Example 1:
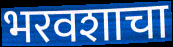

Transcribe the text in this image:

भरवशाचा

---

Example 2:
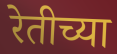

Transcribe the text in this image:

रेतीच्या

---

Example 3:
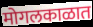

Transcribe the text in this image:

मोगलकाळात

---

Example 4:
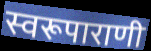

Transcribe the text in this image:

स्वरूपाराणी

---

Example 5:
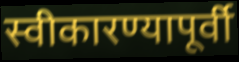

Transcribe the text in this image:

स्वीकारण्यापूर्वी